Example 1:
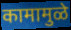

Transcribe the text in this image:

कामामुळे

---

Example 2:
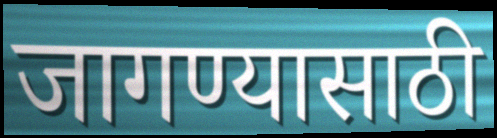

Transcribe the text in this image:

जागण्यासाठी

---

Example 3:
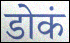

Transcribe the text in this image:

डोकं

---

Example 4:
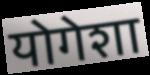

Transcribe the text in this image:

योगेशा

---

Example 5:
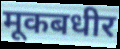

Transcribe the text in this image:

मूकबधीर